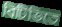
বিটিভিতে